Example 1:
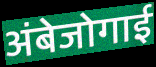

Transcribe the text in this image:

अंबेजोगाई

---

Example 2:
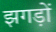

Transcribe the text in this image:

झगड़ों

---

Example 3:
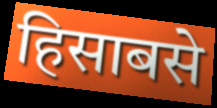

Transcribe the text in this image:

हिसाबसे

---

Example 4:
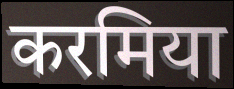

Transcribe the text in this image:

करमिया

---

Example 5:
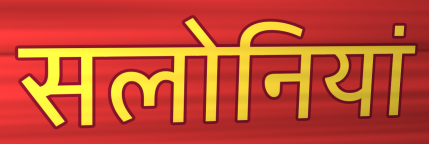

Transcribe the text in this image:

सलोनियां